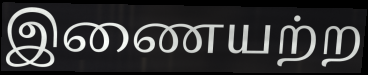
இணையற்ற